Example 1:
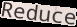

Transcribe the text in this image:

Reduce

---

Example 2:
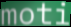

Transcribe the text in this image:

moti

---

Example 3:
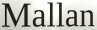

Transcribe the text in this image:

Mallan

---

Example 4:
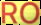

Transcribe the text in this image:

RO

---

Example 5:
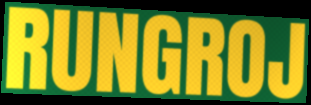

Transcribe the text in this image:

RUNGROJ